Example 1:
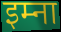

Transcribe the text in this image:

इम्ना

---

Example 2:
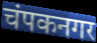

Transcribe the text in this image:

चंपकनगर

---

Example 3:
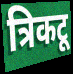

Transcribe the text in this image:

त्रिकटू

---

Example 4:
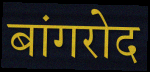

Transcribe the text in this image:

बांगरोद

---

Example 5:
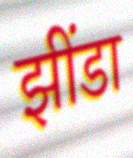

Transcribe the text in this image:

झींडा